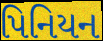
પિનિયન